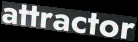
attractor